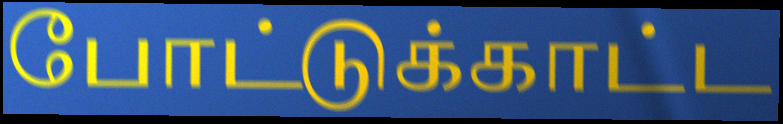
போட்டுக்காட்ட